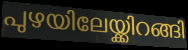
പുഴയിലേയ്ക്കിറങ്ങി